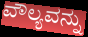
ವೌಲ್ಯವನ್ನು